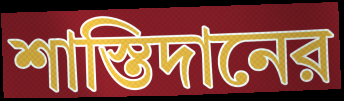
শাস্তিদানের